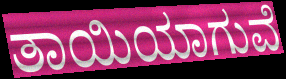
ತಾಯಿಯಾಗುವೆ